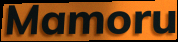
Mamoru